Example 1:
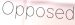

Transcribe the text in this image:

Opposed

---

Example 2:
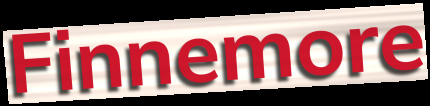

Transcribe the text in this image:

Finnemore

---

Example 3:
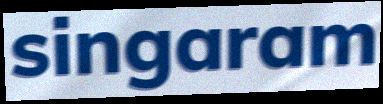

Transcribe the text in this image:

singaram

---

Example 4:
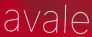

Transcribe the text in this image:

avale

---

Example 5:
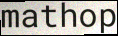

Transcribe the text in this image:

mathop